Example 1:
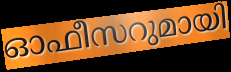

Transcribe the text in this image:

ഓഫീസറുമായി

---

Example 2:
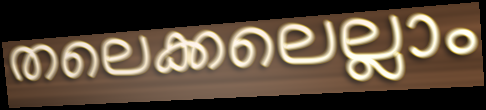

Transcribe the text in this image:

തലെക്കലെല്ലാം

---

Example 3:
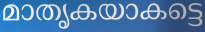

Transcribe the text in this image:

മാതൃകയാകട്ടെ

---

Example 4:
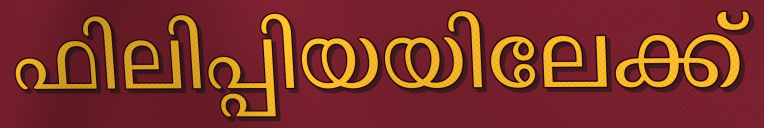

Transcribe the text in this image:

ഫിലിപ്പിയയിലേക്ക്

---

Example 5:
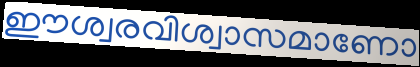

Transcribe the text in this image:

ഈശ്വരവിശ്വാസമാണോ